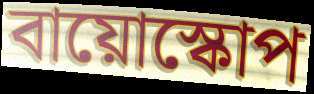
বায়োস্কোপ